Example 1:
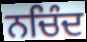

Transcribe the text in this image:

ਨਚਿੰਦ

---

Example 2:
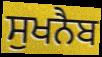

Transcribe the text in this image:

ਸੁਖਨੈਬ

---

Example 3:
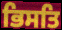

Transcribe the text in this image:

ਭਿਸਤਿ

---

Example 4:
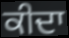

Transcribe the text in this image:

ਕੀਦਾ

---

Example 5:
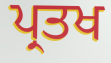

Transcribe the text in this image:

ਪ੍ਰਤਖ